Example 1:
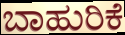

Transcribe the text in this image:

ಬಾಹುರಿಕೆ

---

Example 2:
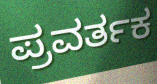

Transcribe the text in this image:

ಪ್ರವರ್ತಕ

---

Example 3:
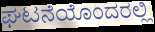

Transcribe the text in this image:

ಘಟನೆಯೊಂದರಲ್ಲಿ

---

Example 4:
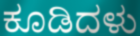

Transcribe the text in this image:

ಕೂಡಿದಳು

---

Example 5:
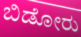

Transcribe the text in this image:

ಬಿಡೋರು